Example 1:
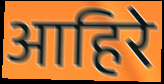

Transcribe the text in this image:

आहिरे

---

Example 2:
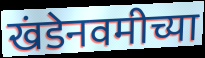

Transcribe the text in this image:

खंडेनवमीच्या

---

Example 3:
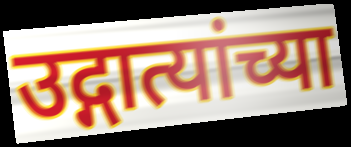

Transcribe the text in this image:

उद्गात्यांच्या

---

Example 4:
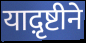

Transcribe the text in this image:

याद़ृष्टीने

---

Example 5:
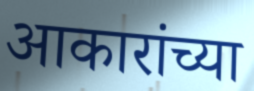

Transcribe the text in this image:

आकारांच्या